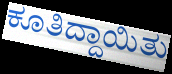
ಕೂತಿದ್ದಾಯಿತು